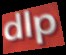
dlp